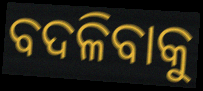
ବଦଳିବାକୁ